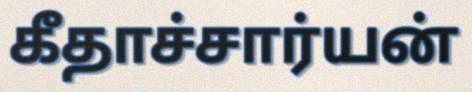
கீதாச்சார்யன்